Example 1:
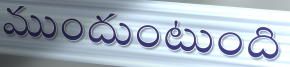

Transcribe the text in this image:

ముందుంటుంది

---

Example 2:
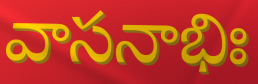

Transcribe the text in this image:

వాసనాభిః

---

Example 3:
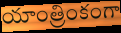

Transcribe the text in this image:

యాంత్రింకంగా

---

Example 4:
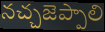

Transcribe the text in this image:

నచ్చజెప్పాలి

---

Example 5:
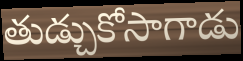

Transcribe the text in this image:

తుడ్చుకోసాగాడు